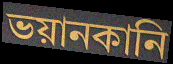
ভয়ানকানি